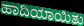
ಹಾದಿಯಾಯಿತು